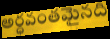
అర్ధవంతమైనది